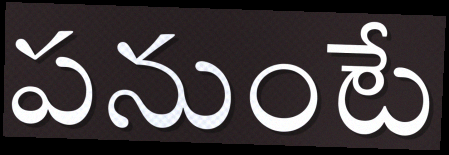
పనుంటే